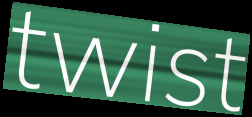
twist